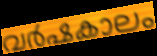
വർഷകാലം